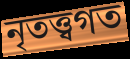
নৃতত্ত্বগত